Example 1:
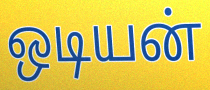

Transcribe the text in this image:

ஒடியன்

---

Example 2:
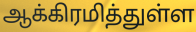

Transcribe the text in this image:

ஆக்கிரமித்துள்ள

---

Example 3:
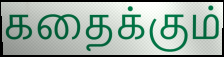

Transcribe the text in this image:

கதைக்கும்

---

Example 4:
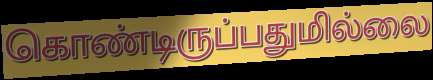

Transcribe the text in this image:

கொண்டிருப்பதுமில்லை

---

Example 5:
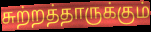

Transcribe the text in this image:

சுற்றத்தாருக்கும்